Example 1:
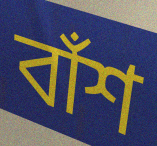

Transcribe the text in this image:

বাঁশ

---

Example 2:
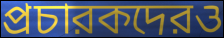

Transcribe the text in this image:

প্রচারকদেরও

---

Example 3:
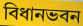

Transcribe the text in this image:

বিধানভবন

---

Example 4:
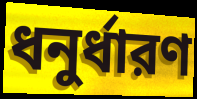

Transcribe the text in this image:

ধনুর্ধারণ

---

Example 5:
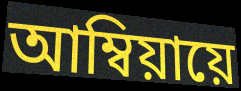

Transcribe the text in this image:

আম্বিয়ায়ে